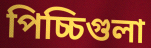
পিচ্চিগুলা